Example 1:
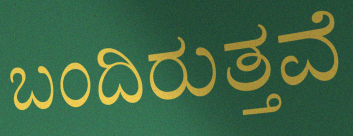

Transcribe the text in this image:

ಬಂದಿರುತ್ತವೆ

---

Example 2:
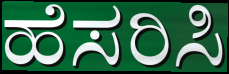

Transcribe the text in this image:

ಹೆಸರಿಸಿ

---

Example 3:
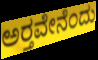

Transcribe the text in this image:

ಅರ‍್ತವೇನೆಂದು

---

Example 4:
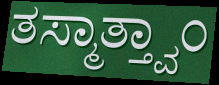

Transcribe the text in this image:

ತಸ್ಮಾತ್ತ್ವಾಂ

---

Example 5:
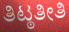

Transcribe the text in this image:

ತಿಟ್ಠತೀತಿ